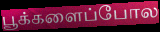
பூக்களைப்போல